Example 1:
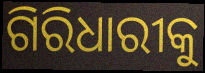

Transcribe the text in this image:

ଗିରିଧାରୀକୁ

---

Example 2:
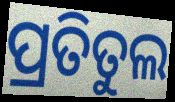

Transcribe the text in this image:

ପ୍ରତିତୁଲ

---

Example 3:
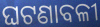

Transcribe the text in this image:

ଘଟଣାବଳୀ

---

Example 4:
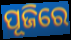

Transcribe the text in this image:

ପୂଜିରେ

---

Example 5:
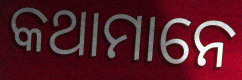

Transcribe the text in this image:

କଥାମାନେ